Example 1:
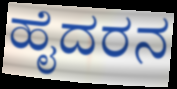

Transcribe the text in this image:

ಹೈದರನ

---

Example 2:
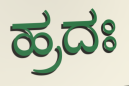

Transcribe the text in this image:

ಹ್ರದಃ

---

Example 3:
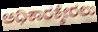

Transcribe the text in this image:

ಅಧಿಕಾರಕ್ಕೇರಲು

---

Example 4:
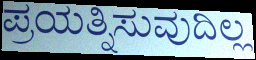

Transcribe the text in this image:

ಪ್ರಯತ್ನಿಸುವುದಿಲ್ಲ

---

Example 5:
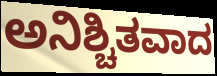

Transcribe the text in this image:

ಅನಿಶ್ಚಿತವಾದ